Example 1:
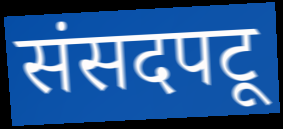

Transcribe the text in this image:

संसदपटू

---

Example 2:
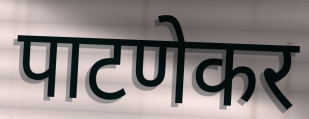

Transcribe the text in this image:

पाटणेकर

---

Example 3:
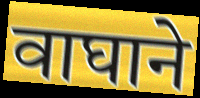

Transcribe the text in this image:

वाघाने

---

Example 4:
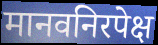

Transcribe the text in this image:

मानवनिरपेक्ष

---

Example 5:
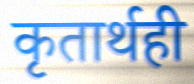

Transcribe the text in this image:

कृतार्थही